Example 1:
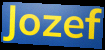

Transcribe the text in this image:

Jozef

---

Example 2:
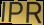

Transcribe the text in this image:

IPR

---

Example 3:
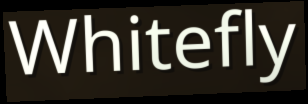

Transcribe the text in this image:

Whitefly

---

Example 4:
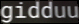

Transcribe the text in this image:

gidduu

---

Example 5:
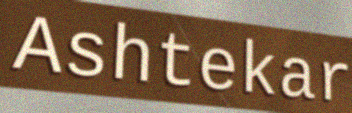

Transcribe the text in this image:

Ashtekar